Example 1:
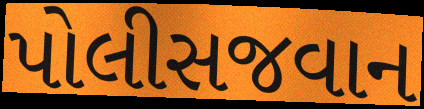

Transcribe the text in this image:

પોલીસજવાન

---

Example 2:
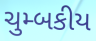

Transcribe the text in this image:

ચુમ્બકીય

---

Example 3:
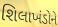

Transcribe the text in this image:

શિલાખંડોને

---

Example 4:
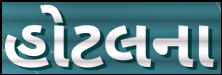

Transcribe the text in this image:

હોટલના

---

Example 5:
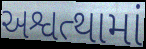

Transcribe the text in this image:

અશ્વત્થામાં